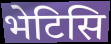
भेटिसि